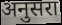
अनुसरा